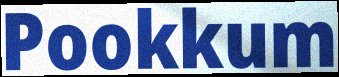
Pookkum